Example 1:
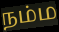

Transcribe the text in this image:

நம்ம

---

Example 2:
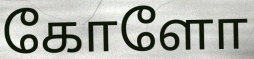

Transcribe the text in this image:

கோளோ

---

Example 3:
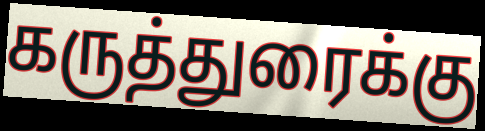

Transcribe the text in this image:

கருத்துரைக்கு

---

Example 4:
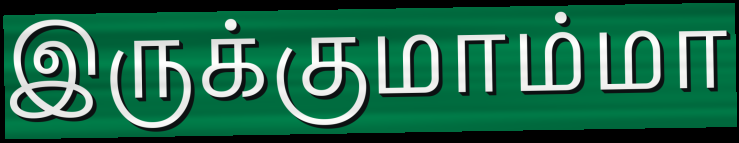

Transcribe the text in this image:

இருக்குமாம்மா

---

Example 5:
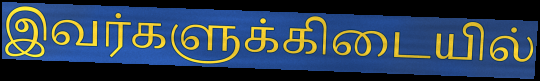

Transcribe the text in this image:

இவர்களுக்கிடையில்